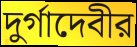
দুর্গাদেবীর